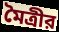
মৈত্রীর